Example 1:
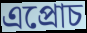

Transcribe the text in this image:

এপ্রোচ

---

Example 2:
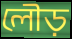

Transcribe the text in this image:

লৌড়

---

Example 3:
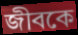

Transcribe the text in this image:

জীবকে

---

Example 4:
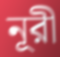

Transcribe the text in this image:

নূরী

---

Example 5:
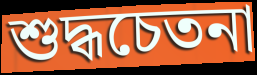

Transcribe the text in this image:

শুদ্ধচেতনা